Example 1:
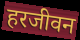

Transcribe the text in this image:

हरजीवन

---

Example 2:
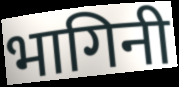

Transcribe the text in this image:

भागिनी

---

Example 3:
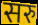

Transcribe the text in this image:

सरु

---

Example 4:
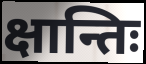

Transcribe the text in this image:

क्षान्तिः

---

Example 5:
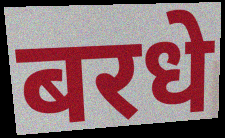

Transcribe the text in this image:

बरधे